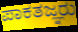
ಪಾಕತಜ್ಞರು